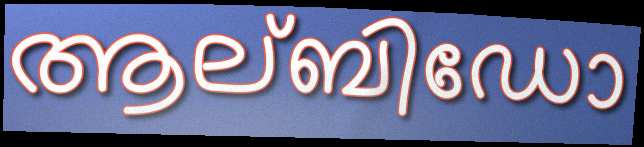
ആല്ബിഡോ